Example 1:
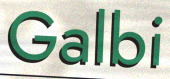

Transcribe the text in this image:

Galbi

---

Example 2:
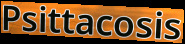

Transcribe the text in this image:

Psittacosis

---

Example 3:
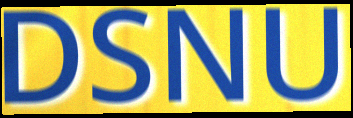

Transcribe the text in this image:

DSNU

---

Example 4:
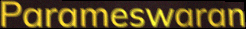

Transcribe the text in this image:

Parameswaran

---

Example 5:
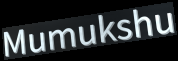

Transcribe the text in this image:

Mumukshu